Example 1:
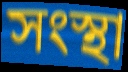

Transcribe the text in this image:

সংস্থা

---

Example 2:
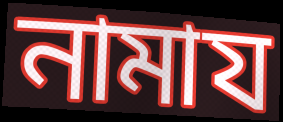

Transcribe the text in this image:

নামায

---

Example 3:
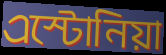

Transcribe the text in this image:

এস্টোনিয়া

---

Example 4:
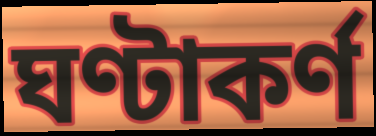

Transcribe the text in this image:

ঘণ্টাকর্ণ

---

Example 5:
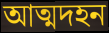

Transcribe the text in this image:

আত্মদহন